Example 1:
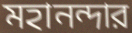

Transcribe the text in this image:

মহানন্দার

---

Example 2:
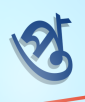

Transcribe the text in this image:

প্ত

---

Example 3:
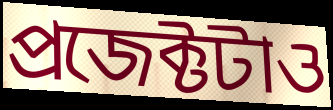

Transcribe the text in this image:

প্রজেক্টটাও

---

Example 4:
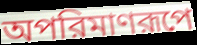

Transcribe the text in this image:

অপরিমাণরূপে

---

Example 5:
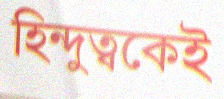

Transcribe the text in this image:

হিন্দুত্বকেই